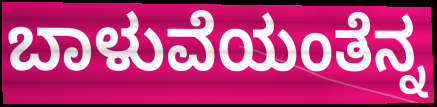
ಬಾಳುವೆಯಂತೆನ್ನ